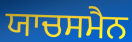
ਯਾਚਸਮੈਨ